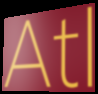
Atl